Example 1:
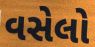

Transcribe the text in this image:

વસેલો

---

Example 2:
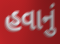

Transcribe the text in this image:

હવાનું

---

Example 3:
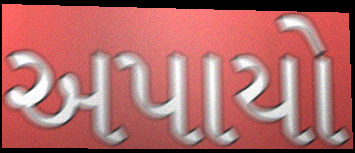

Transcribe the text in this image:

અપાયો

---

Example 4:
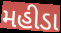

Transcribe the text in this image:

મહીડા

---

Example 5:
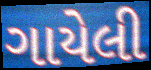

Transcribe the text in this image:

ગાયેલી